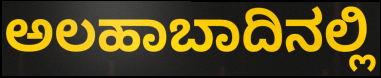
ಅಲಹಾಬಾದಿನಲ್ಲಿ